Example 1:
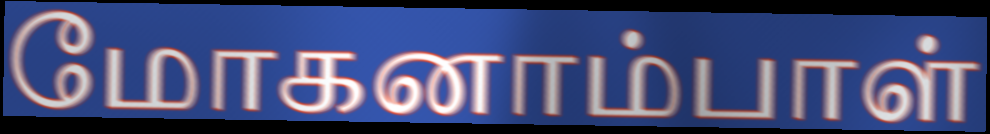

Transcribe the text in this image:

மோகனாம்பாள்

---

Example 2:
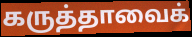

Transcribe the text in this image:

கருத்தாவைக்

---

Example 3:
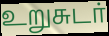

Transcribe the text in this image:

உறுசுடர்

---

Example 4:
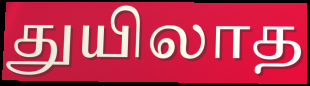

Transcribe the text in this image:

துயிலாத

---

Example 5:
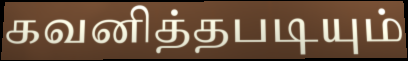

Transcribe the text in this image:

கவனித்தபடியும்